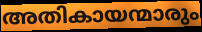
അതികായന്മാരും